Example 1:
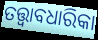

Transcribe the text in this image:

ତତ୍ତ୍ୱାବଧାରିକା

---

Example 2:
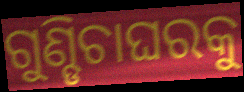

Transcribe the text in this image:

ଗୁଣ୍ଡିଚାଘରକୁ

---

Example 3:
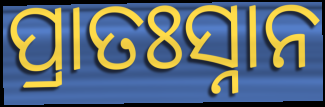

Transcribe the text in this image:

ପ୍ରାତଃସ୍ନାନ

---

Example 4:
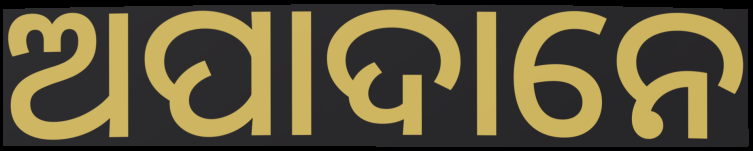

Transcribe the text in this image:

ଅପାଦାନେ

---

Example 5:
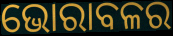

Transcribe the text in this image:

ଭୋରାବଳର